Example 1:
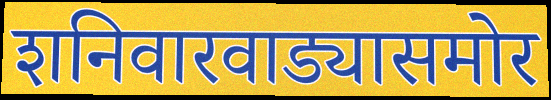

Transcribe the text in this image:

शनिवारवाड्यासमोर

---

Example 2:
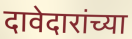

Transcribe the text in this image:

दावेदारांच्या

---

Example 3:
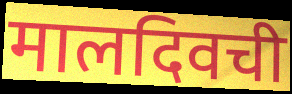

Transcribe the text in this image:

मालदिवची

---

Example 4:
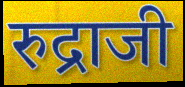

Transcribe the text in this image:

रुद्राजी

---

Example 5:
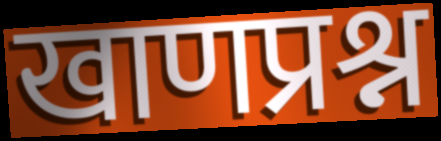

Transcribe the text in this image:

खाणप्रश्न